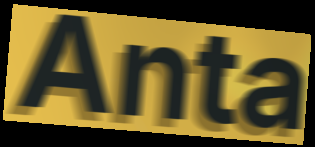
Anta